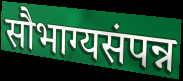
सौभाग्यसंपन्न